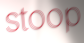
stoop